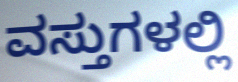
ವಸ್ತುಗಳಲ್ಲಿ